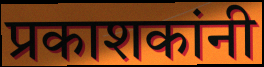
प्रकाशकांनी